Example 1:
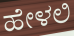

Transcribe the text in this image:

ಹೇಳಲಿ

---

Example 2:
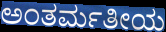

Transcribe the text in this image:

ಅಂತರ್ಮತೀಯ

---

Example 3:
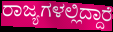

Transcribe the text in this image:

ರಾಜ್ಯಗಳಲ್ಲಿದ್ದಾರೆ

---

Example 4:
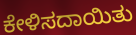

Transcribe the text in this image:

ಕೇಳಿಸದಾಯಿತು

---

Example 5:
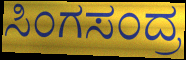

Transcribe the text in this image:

ಸಿಂಗಸಂದ್ರ